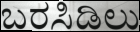
ಬರಸಿಡಿಲು